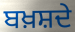
ਬਖ਼ਸ਼ਦੇ